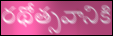
రథోత్సవానికి